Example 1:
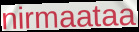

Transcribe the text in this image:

nirmaataa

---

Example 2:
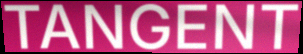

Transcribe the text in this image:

TANGENT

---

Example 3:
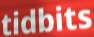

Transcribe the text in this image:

tidbits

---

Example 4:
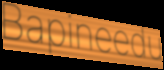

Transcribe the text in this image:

Bapineedu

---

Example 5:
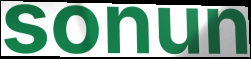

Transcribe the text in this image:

sonun